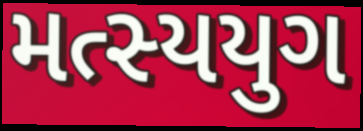
મત્સ્યયુગ